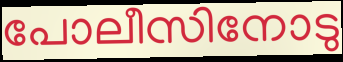
പോലീസിനോടു